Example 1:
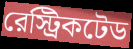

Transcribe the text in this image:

রেস্ট্রিকটেড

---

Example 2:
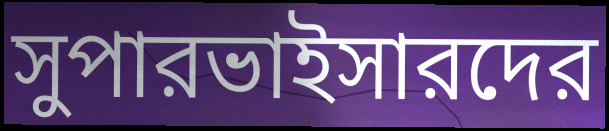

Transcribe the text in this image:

সুপারভাইসারদের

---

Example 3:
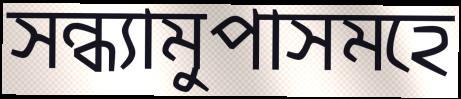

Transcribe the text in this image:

সন্ধ্যামুপাসমহে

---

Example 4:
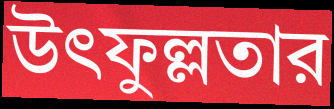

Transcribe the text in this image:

উৎফুল্লতার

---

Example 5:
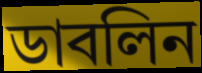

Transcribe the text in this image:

ডাবলিন